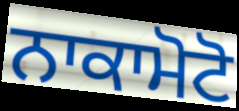
ਨਾਕਾਮੋਟੋ